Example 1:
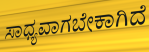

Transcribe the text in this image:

ಸಾಧ್ಯವಾಗಬೇಕಾಗಿದೆ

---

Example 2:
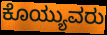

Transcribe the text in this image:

ಕೊಯ್ಯುವರು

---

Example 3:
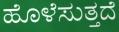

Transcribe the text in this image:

ಹೊಳೆಸುತ್ತದೆ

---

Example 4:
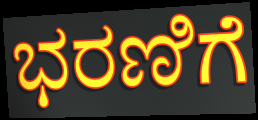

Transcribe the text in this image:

ಭರಣಿಗೆ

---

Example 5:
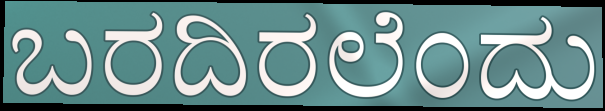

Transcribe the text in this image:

ಬರದಿರಲೆಂದು